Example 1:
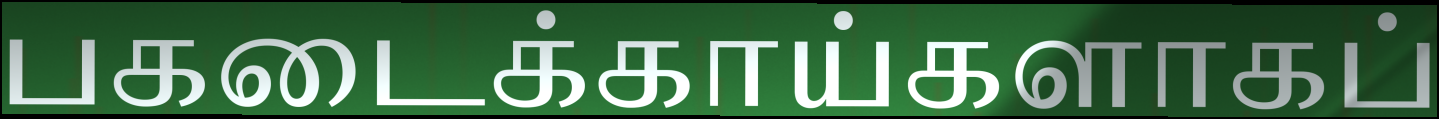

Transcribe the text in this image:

பகடைக்காய்களாகப்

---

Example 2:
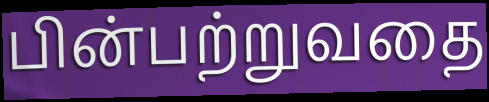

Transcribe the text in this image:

பின்பற்றுவதை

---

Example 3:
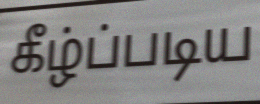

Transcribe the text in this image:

கீழ்ப்படிய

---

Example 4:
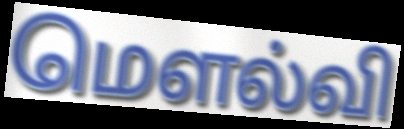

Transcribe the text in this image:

மௌல்வி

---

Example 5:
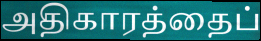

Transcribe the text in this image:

அதிகாரத்தைப்